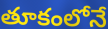
తూకంలోనే